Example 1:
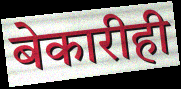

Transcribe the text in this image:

बेकारीही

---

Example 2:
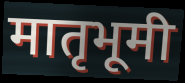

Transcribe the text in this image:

मातृभूमी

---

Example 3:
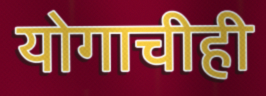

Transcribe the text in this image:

योगाचीही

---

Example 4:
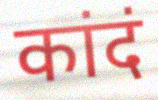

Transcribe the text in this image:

कांदं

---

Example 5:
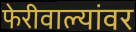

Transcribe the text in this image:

फेरीवाल्यांवर